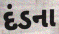
દંડના